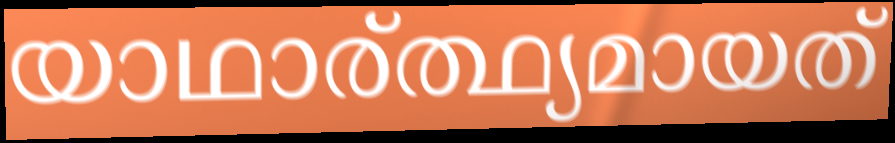
യാഥാര്ത്ഥ്യമായത്